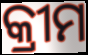
କ୍ରୀମ